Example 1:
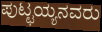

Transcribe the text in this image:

ಪುಟ್ಟಯ್ಯನವರು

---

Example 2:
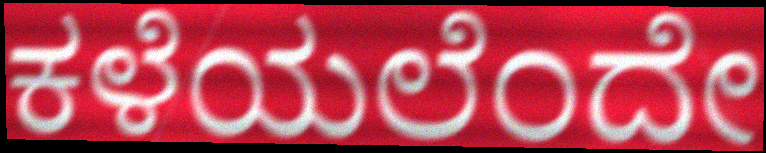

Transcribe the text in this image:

ಕಳೆಯಲೆಂದೇ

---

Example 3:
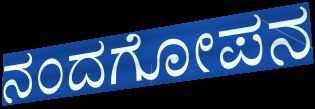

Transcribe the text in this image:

ನಂದಗೋಪನ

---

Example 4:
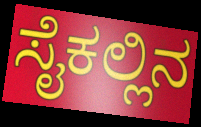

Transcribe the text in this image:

ಸೈಕಲ್ಲಿನ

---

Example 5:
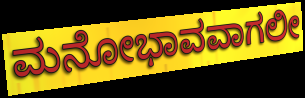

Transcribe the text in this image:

ಮನೋಭಾವವಾಗಲೀ